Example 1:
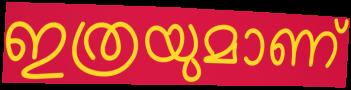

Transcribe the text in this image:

ഇത്രയുമാണ്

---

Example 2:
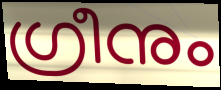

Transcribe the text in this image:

ഗ്രീനും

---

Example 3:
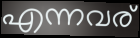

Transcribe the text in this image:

എന്നവര്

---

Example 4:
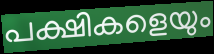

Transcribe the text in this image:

പക്ഷികളെയും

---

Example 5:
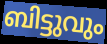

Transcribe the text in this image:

ബിട്ടുവും